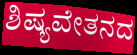
ಶಿಷ್ಯವೇತನದ